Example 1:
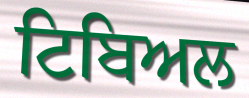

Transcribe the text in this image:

ਟਿਬਿਅਲ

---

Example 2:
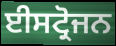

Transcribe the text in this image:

ਈਸਟ੍ਰੋਜਨ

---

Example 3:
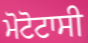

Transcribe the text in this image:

ਮੋਟੋਟਾਸੀ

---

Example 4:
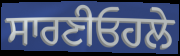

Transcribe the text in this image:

ਸਾਰਣੀਓਹਲੇ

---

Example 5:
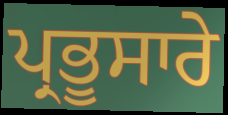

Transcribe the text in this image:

ਪ੍ਰਭੂਸਾਰੇ